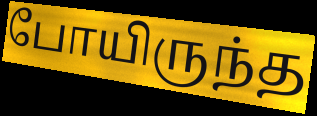
போயிருந்த